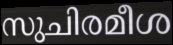
സുചിരമീശ